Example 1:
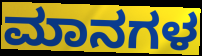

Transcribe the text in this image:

ಮಾನಗಳ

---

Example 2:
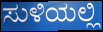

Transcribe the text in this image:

ಸುಳಿಯಲ್ಲಿ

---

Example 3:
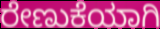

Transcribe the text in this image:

ರೇಣುಕೆಯಾಗಿ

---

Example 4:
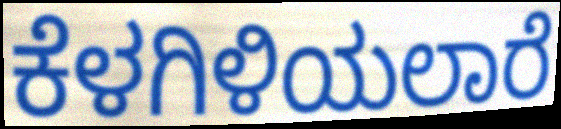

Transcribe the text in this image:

ಕೆಳಗಿಳಿಯಲಾರೆ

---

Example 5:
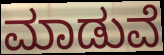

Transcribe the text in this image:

ಮಾಡುವೆ